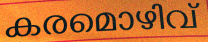
കരമൊഴിവ്